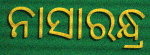
ନାସାରନ୍ଧ୍ର